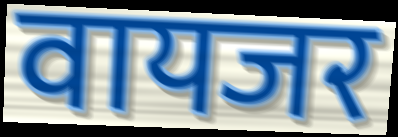
वायजर